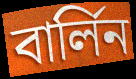
বার্লিন